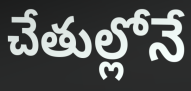
చేతుల్లోనే